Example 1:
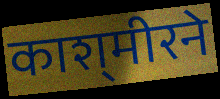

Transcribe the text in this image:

काश्मीरने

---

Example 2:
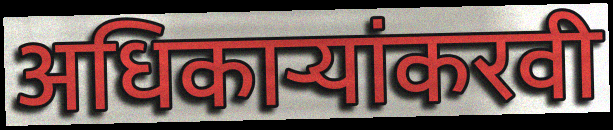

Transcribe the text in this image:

अधिकाऱ्यांकरवी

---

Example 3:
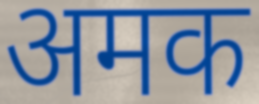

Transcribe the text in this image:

अमक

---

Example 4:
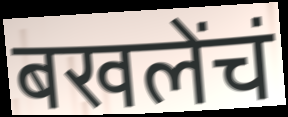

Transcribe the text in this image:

बखलेंचं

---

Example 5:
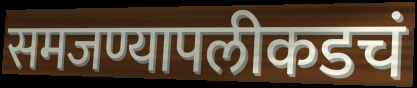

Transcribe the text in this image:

समजण्यापलीकडचं